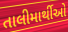
તાલીમાર્થીઓ